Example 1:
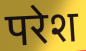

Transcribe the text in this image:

परेश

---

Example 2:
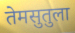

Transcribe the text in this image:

तेमसुतुला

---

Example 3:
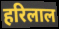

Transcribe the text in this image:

हरिलाल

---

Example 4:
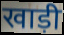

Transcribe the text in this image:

खाड़ी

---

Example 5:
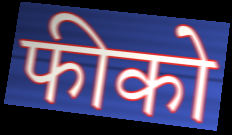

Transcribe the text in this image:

फीको